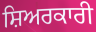
ਸ਼ਿਅਰਕਾਰੀ